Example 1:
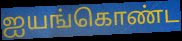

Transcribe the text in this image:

ஐயங்கொண்ட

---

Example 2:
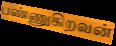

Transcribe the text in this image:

பண்ணுகிறவன்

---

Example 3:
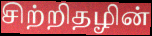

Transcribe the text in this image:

சிற்றிதழின்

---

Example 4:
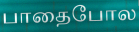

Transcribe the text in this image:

பாதைபோல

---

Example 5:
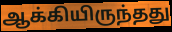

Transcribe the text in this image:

ஆக்கியிருந்தது